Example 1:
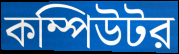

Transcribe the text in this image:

কম্পিউটর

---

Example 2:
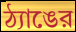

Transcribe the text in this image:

ঠ্যাঙের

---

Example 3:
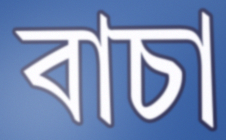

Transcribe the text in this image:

বাচা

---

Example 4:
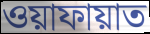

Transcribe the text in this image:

ওয়াফায়াত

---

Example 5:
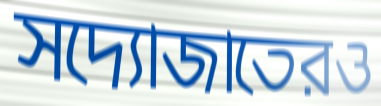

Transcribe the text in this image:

সদ্যোজাতেরও